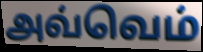
அவ்வெம்